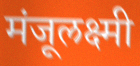
मंजूलक्ष्मी